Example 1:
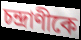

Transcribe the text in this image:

চন্দ্রাণীকে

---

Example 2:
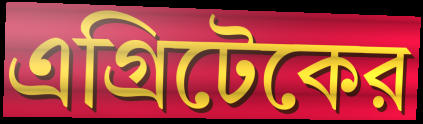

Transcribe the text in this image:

এগ্রিটেকের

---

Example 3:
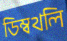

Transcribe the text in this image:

ডিম্বথলি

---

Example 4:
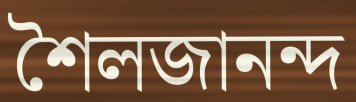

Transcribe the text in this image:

শৈলজানন্দ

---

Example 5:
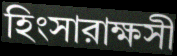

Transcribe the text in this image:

হিংসারাক্ষসী